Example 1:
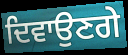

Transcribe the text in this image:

ਦਿਵਾਉਣਗੇ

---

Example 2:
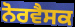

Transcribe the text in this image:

ਨੋਰਵੈਸਕ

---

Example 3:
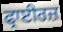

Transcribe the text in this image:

ਫ੍ਰਾਈਰਜ਼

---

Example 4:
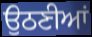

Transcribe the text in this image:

ਉਠਣੀਆਂ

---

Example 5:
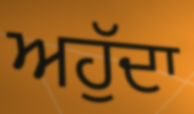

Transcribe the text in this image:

ਅਹੁੱਦਾ